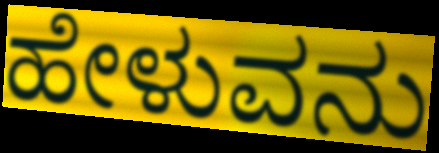
ಹೇಳುವನು